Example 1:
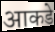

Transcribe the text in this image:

आकडे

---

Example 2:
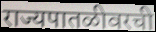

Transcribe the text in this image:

राज्यपातळीवरची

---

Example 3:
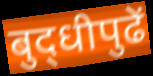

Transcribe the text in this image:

बुद्धीपुढें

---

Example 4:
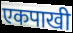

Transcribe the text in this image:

एकपाखी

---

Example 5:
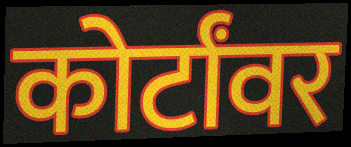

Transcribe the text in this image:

कोर्टांवर